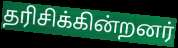
தரிசிக்கின்றனர்